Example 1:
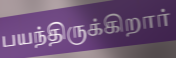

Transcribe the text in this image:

பயந்திருக்கிறார்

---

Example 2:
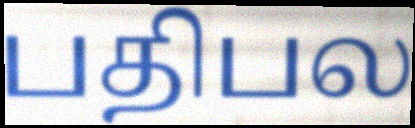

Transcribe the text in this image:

பதிபல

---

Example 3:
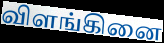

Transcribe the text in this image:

விளங்கினை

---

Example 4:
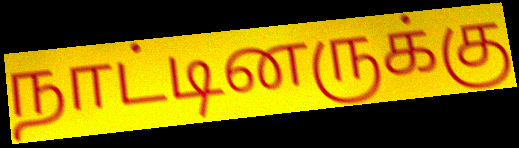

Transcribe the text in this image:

நாட்டினருக்கு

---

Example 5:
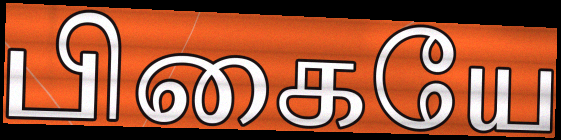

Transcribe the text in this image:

பிகையே